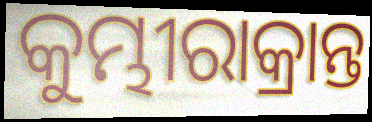
କୁମ୍ଭୀରାକ୍ରାନ୍ତ